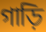
গাড়ি